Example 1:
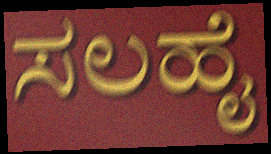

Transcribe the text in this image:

ಸಲಹೈ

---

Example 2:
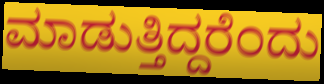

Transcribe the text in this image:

ಮಾಡುತ್ತಿದ್ದರೆಂದು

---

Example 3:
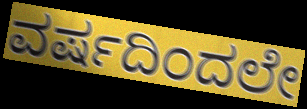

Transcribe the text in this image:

ವರ್ಷದಿಂದಲೇ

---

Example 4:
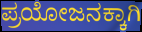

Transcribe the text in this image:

ಪ್ರಯೋಜನಕ್ಕಾಗಿ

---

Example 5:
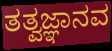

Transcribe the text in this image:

ತತ್ವಜ್ಞಾನವ